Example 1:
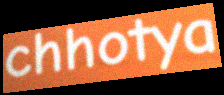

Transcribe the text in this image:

chhotya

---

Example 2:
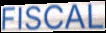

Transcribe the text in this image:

FISCAL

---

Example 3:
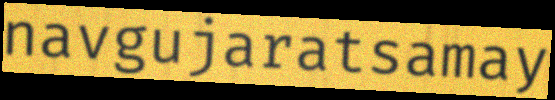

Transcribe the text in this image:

navgujaratsamay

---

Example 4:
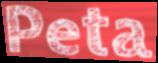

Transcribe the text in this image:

Peta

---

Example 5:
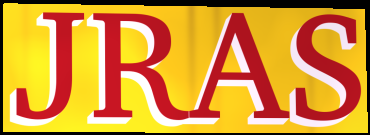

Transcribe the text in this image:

JRAS